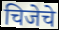
चिजेचे